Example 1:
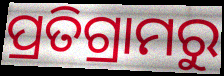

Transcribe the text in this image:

ପ୍ରତିଗ୍ରାମରୁ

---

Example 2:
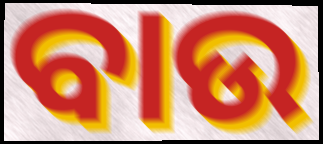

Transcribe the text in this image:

ବାଉ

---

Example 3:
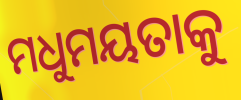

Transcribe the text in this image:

ମଧୁମୟତାକୁ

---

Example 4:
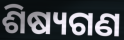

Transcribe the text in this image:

ଶିଷ୍ୟଗଣ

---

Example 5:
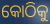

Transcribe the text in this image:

କୋଠିକୁ